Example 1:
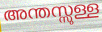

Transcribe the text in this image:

അന്തസ്സുള്ള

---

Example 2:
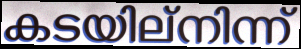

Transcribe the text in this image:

കടയില്നിന്ന്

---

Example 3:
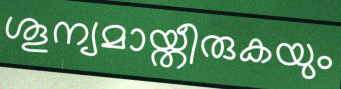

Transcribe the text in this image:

ശൂന്യമായ്തീരുകയും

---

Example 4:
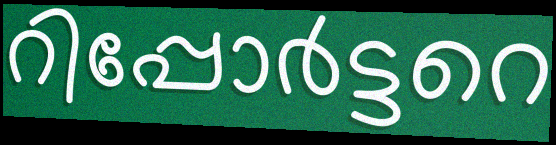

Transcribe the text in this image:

റിപ്പോർട്ടറെ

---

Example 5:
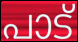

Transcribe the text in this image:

പാട്